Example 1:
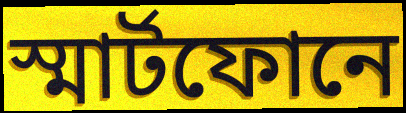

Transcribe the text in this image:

স্মার্টফোনে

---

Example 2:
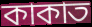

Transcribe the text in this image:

কাকাত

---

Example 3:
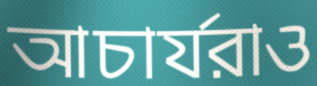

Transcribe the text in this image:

আচার্যরাও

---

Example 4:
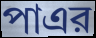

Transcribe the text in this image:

পাএর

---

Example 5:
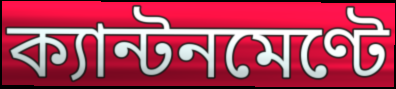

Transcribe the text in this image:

ক্যান্টনমেণ্টে